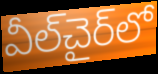
వీల్‌చైర్‌లో